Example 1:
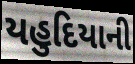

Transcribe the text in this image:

યહુદિયાની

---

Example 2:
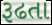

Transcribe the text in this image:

રૂઢતા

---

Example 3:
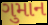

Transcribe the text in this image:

ગુમાન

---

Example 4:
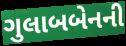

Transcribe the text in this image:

ગુલાબબેનની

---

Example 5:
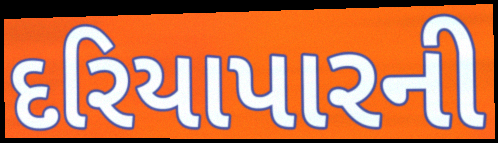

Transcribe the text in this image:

દરિયાપારની